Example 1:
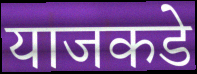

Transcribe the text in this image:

याजकडे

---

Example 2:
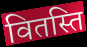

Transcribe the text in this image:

वितस्ति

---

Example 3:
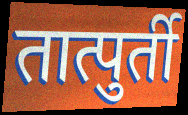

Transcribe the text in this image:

तात्पुर्ती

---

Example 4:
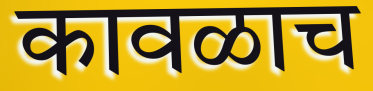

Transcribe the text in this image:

कावळाच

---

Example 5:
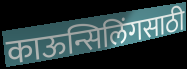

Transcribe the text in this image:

काऊन्सिलिंगसाठी